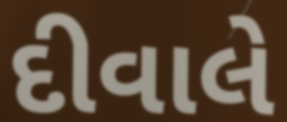
દીવાલે